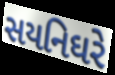
સયનિઘરે